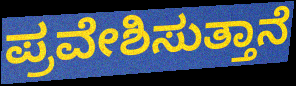
ಪ್ರವೇಶಿಸುತ್ತಾನೆ